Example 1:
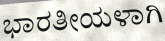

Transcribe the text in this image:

ಭಾರತೀಯಳಾಗಿ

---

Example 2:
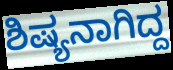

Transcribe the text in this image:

ಶಿಷ್ಯನಾಗಿದ್ದ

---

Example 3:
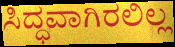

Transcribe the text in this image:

ಸಿದ್ಧವಾಗಿರಲಿಲ್ಲ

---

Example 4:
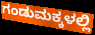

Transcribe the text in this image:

ಗಂಡುಮಕ್ಕಳಲ್ಲಿ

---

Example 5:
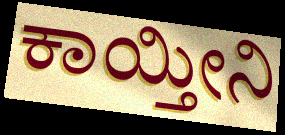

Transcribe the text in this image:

ಕಾಯ್ತೀನಿ